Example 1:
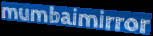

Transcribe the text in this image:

mumbaimirror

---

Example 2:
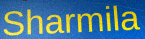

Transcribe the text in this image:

Sharmila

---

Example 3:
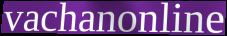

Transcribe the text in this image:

vachanonline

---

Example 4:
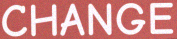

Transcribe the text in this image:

CHANGE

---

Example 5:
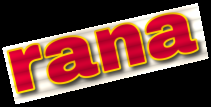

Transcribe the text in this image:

rana